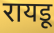
रायडू